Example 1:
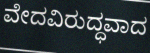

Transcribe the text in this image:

ವೇದವಿರುದ್ಧವಾದ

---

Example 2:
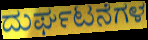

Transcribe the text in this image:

ದುರ್ಘಟನೆಗಳ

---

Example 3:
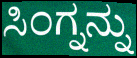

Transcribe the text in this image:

ಸಿಂಗ್ನನ್ನು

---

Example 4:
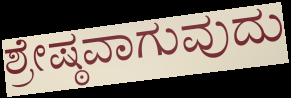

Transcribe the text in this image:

ಶ್ರೇಷ್ಠವಾಗುವುದು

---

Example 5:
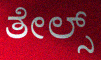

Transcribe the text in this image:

ತೇಲ್ಸ್